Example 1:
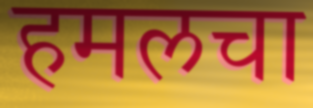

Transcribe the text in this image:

हमलचा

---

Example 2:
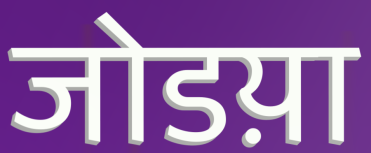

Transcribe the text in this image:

जोडय़ा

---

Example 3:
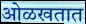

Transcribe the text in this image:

ओळखतात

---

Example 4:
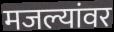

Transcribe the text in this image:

मजल्यांवर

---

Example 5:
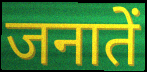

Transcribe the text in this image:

जनातें